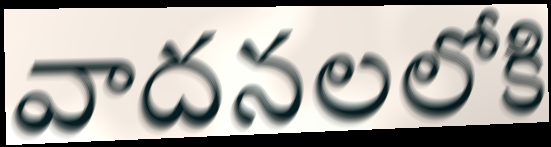
వాదనలలోకి